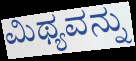
ಮಿಥ್ಯವನ್ನು